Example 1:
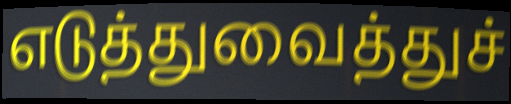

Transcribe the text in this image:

எடுத்துவைத்துச்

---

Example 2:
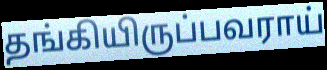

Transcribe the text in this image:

தங்கியிருப்பவராய்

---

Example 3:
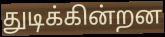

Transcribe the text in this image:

துடிக்கின்றன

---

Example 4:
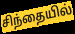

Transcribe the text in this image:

சிந்தையில்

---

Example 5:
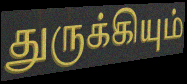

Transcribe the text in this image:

துருக்கியும்